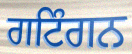
ਗਟਿੰਗਨ